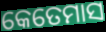
କେତେମାସ